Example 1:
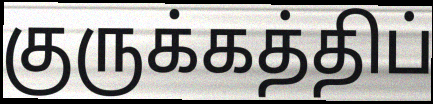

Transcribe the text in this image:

குருக்கத்திப்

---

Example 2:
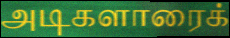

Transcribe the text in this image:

அடிகளாரைக்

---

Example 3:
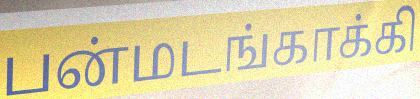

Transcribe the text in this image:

பன்மடங்காக்கி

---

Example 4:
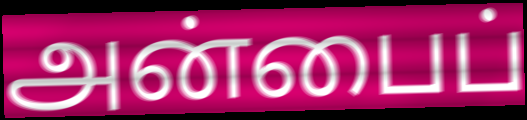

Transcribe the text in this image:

அன்பைப்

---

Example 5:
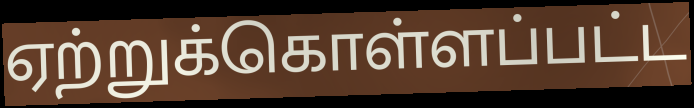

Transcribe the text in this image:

ஏற்றுக்கொள்ளப்பட்ட